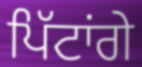
ਪਿੱਟਾਂਗੇ